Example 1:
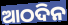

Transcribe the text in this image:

ଆଠଦିନ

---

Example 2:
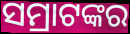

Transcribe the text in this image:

ସମ୍ରାଟଙ୍କର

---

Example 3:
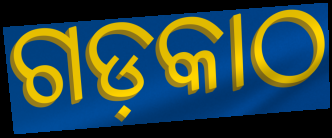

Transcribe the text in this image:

ଗଡ଼କାଠ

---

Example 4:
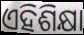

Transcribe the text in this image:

ଏହିଶିକ୍ଷା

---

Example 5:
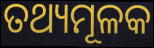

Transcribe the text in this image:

ତଥ୍ୟମୂଳକ